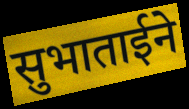
सुभाताईने